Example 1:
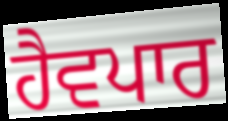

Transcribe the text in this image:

ਹੈਵਪਾਰ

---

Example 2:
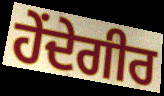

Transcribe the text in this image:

ਹੇਂਦੇਗੀਰ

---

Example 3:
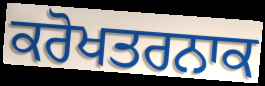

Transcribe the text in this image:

ਕਰੋਖਤਰਨਾਕ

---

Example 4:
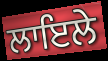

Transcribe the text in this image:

ਲਾਇਲੇ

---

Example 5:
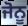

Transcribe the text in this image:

ਜੋਨੂ